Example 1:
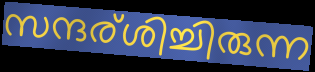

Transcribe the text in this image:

സന്ദര്ശിച്ചിരുന്ന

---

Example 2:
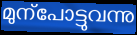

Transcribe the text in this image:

മുന്പോട്ടുവന്നു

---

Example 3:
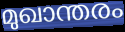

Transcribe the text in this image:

മുഖാന്തരം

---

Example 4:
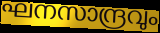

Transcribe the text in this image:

ഘനസാന്ദ്രവും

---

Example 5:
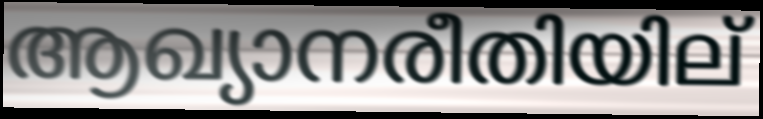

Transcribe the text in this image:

ആഖ്യാനരീതിയില്